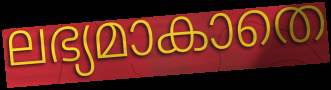
ലഭ്യമാകാതെ